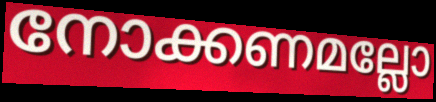
നോക്കണമല്ലോ